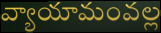
వ్యాయామంవల్ల